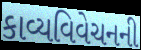
કાવ્યવિવેચનની